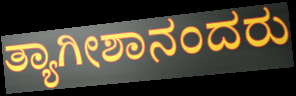
ತ್ಯಾಗೀಶಾನಂದರು